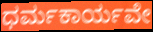
ಧರ್ಮಕಾರ್ಯವೇ